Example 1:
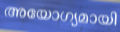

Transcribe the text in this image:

അയോഗ്യമായി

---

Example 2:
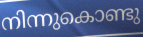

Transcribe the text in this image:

നിന്നുകൊണ്ടു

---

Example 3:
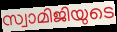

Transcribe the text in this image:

സ്വാമിജിയുടെ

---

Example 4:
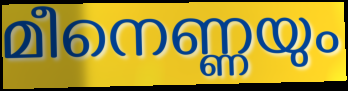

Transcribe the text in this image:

മീനെണ്ണയും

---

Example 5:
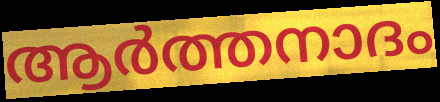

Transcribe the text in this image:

ആർത്തനാദം